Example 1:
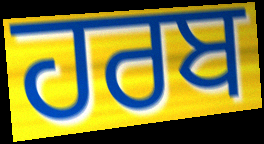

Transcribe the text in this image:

ਹਰਬ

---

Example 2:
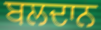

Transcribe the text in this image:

ਬਲਦਾਨ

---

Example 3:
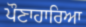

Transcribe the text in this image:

ਪੌਣਾਹਾਰਿਆ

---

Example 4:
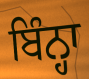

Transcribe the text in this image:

ਬਿੰਨ੍ਹਾ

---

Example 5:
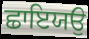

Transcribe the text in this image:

ਛਾਇਯਉ